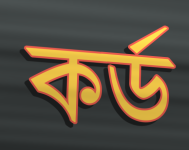
কর্ড